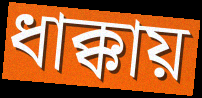
ধাক্কায়